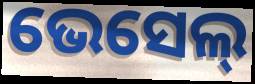
ଭେସେଲ୍